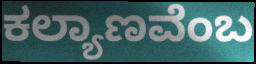
ಕಲ್ಯಾಣವೆಂಬ